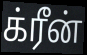
க்ரீன்